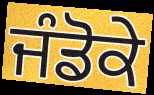
ਜੰਡੋਕੇ